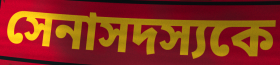
সেনাসদস্যকে